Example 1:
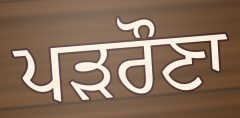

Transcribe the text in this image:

ਪੜਰੌਣਾ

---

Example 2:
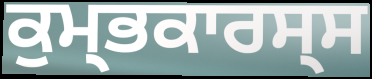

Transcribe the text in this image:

ਕੁਮ੍ਭਕਾਰਸ੍ਸ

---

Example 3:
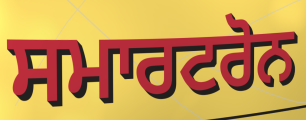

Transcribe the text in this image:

ਸਮਾਰਟਰੋਨ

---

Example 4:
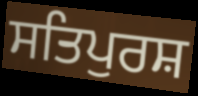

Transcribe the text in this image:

ਸਤਿਪੁਰਸ਼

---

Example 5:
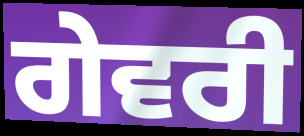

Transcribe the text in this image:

ਗੇਵਰੀ